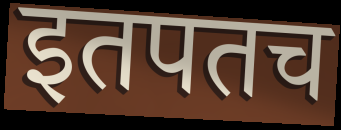
इतपतच